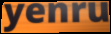
yenru